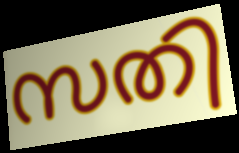
സതി